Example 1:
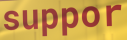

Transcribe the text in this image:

suppor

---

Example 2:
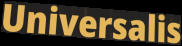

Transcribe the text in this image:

Universalis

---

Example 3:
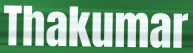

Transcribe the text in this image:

Thakumar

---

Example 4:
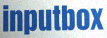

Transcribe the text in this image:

inputbox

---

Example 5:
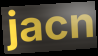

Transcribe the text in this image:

jacn